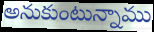
అనుకుంటున్నాము